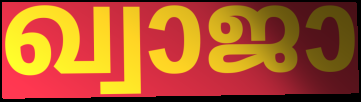
ഖ്വാജാ